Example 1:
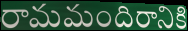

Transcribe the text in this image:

రామమందిరానికి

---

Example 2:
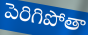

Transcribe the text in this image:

పెరిగిపోతా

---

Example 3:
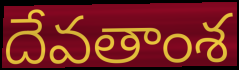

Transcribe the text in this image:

దేవతాంశ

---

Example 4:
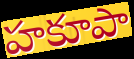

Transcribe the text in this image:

హకూపా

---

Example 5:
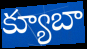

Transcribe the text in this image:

క్యూబా